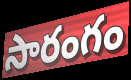
సారంగం